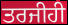
ਤਰਜੀਹੀ